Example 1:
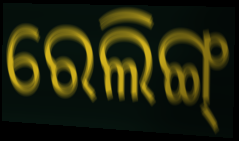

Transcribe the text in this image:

ରେଲିଙ୍ଗ୍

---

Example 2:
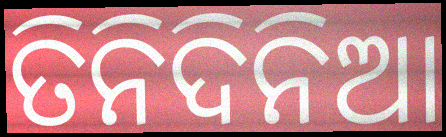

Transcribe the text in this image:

ତିନିଦିନିଆ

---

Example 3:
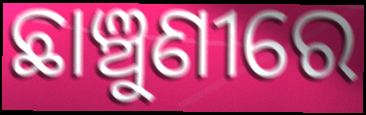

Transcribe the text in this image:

ଛାଞ୍ଚୁଣୀରେ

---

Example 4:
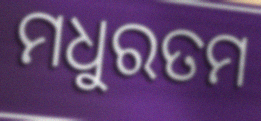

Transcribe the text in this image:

ମଧୁରତମ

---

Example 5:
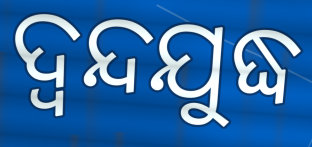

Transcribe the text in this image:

ଦ୍ୱନ୍ଦଯୁଦ୍ଧ